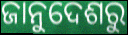
ଜାନୁଦେଶରୁ